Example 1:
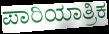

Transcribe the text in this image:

ಪಾರಿಯಾತ್ರಿಕ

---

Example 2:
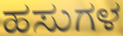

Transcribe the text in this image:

ಹಸುಗಳ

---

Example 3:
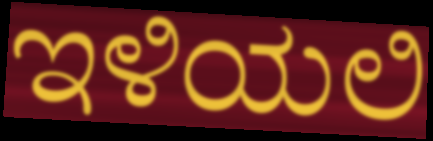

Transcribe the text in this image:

ಇಳಿಯಲಿ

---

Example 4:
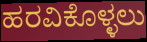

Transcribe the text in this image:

ಹರವಿಕೊಳ್ಳಲು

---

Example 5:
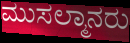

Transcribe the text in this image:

ಮುಸಲ್ಮಾನರು